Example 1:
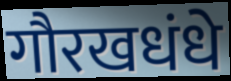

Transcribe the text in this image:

गौरखधंधे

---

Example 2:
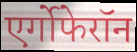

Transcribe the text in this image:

एर्गोफेरॉन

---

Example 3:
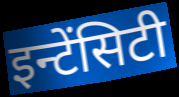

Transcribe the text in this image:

इन्टेंसिटी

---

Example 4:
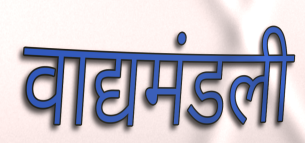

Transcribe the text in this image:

वाद्यमंडली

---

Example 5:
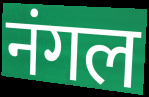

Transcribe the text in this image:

नंगल